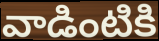
వాడింటికి